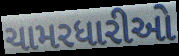
ચામરધારીઓ